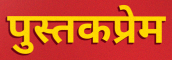
पुस्तकप्रेम